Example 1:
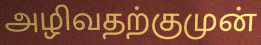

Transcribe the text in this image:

அழிவதற்குமுன்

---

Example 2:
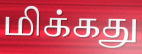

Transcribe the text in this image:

மிக்கது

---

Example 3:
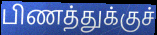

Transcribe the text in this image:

பிணத்துக்குச்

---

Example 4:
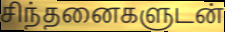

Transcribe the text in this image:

சிந்தனைகளுடன்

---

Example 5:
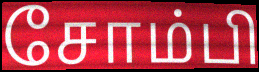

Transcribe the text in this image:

சோம்பி